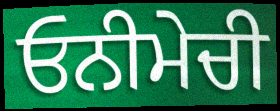
ਓਨੀਮੇਚੀ